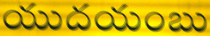
యుదయంబు